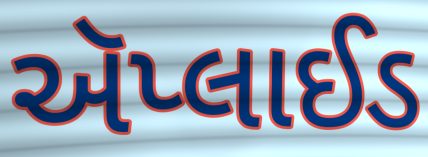
ઍપ્લાઈડ